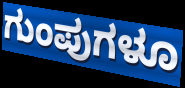
ಗುಂಪುಗಳೂ